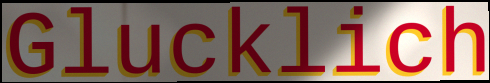
Glucklich